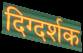
दिग्दर्शक